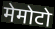
मेमोटो